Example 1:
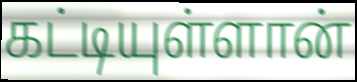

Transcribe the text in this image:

கட்டியுள்ளான்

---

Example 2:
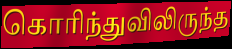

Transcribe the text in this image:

கொரிந்துவிலிருந்த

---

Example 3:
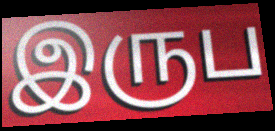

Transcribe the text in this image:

இருப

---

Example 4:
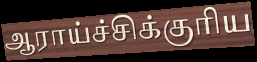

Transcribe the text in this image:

ஆராய்ச்சிக்குரிய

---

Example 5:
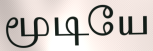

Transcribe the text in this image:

மூடியே